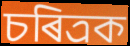
চৰিত্ৰক